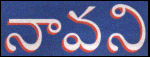
నావని